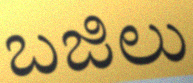
ಬಜಿಲು